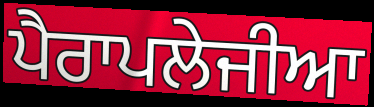
ਪੈਰਾਪਲੇਜੀਆ